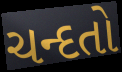
ચન્દતો